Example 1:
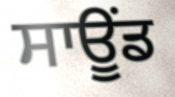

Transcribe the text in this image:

ਸਾਊਂਡ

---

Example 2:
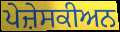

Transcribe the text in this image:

ਪੇਜ਼ੇਸਕੀਅਨ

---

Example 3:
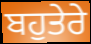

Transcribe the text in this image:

ਬਹੁਤੇਰੇ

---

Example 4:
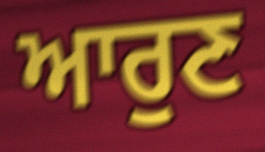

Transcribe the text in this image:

ਆਰੁਣ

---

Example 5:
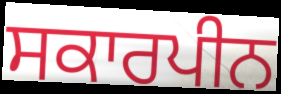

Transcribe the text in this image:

ਸਕਾਰਪੀਨ